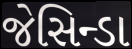
જેસિન્ડા